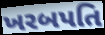
ખરબપતિ